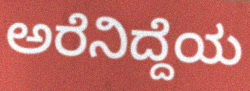
ಅರೆನಿದ್ದೆಯ